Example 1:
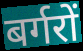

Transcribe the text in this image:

बर्गरों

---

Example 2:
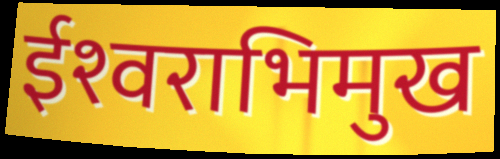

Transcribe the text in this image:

ईश्वराभिमुख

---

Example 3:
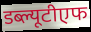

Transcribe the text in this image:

डब्ल्यूटीएफ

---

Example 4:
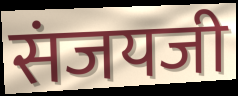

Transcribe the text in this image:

संजयजी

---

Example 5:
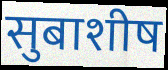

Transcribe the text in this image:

सुबाशीष